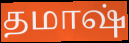
தமாஷ்